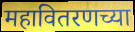
महावितरणच्या